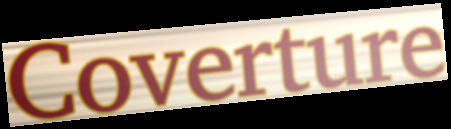
Coverture